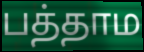
பத்தாம